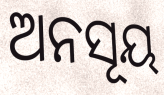
ଅନସୂୟ